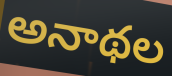
అనాథల